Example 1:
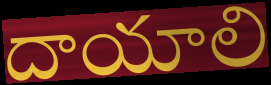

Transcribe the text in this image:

దాయాలి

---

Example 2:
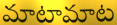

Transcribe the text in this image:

మాటామాట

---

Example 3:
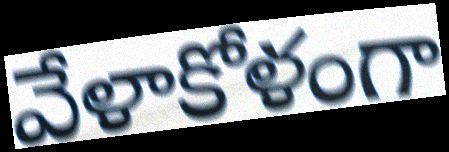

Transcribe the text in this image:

వేళాకోళంగా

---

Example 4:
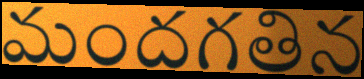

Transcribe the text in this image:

మందగతిన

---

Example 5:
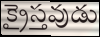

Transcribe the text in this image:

క్రైస్తవుడు